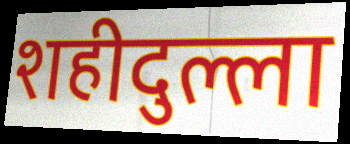
शहीदुल्ला